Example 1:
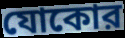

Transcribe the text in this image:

যোকোর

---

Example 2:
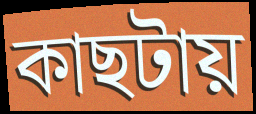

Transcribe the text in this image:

কাছটায়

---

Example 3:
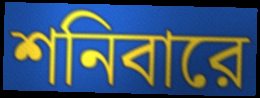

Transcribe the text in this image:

শনিবারে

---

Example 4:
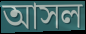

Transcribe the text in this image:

আসল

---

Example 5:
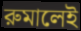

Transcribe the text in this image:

রুমালেই